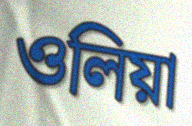
ওলিয়া